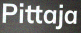
Pittaja